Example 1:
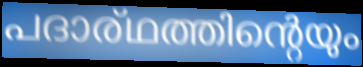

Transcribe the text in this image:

പദാര്ഥത്തിന്റെയും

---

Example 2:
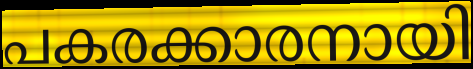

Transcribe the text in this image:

പകരക്കാരനായി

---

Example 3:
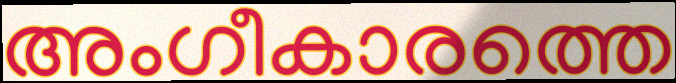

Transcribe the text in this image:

അംഗീകാരത്തെ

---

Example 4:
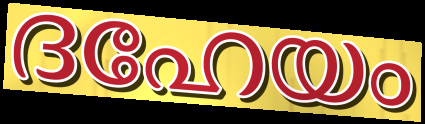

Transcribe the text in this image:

ദഹേയം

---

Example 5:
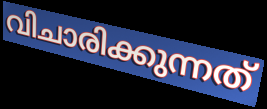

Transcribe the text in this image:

വിചാരിക്കുന്നത്